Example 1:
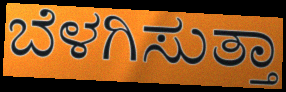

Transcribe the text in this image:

ಬೆಳಗಿಸುತ್ತಾ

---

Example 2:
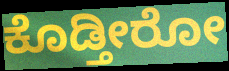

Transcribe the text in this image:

ಕೊಡ್ತೀರೋ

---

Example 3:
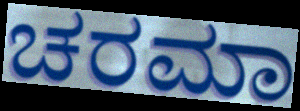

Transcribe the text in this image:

ಚರಮಾ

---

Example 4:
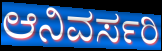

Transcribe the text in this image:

ಆನಿವರ್ಸರಿ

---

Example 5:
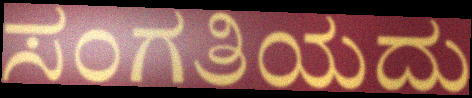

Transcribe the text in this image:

ಸಂಗತಿಯದು